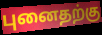
புனைதற்கு